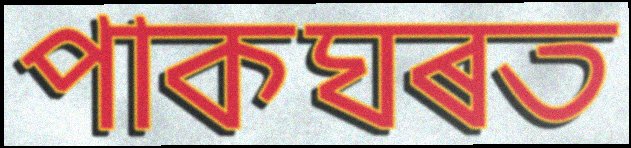
পাকঘৰত